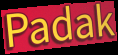
Padak